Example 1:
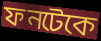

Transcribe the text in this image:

ফনটেকে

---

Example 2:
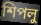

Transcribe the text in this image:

শিপলু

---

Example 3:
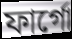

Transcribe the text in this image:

ফার্গো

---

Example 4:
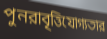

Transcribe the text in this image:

পুনরাবৃত্তিযোগ্যতার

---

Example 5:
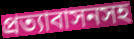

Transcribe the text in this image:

প্রত্যাবাসনসহ